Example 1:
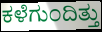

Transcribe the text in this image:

ಕಳೆಗುಂದಿತ್ತು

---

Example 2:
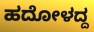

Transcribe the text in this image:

ಹದೋಳದ್ದ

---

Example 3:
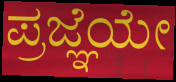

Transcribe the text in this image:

ಪ್ರಜ್ಞೆಯೇ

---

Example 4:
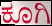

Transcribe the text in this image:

ಕೂಗಿ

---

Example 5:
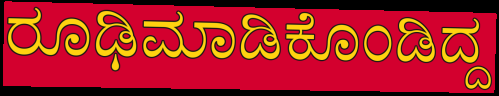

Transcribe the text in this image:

ರೂಢಿಮಾಡಿಕೊಂಡಿದ್ದ